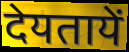
देयतायें